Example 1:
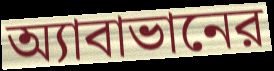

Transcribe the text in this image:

অ্যাবাভানের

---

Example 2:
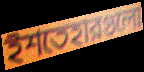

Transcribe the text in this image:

ইশতেহারগুলো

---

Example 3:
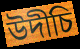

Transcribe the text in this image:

উদীচি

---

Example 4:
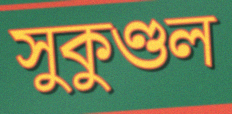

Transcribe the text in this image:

সুকুণ্ডল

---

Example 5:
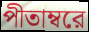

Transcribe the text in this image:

পীতাম্বরে